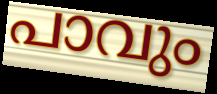
പാവും